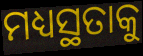
ମଧ୍ୟସ୍ଥତାକୁ